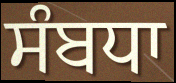
ਸੰਬਧਾ